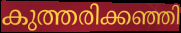
കുത്തരിക്കഞ്ഞി